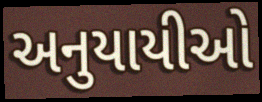
અનુયાયીઓ